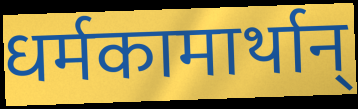
धर्मकामार्थान्